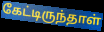
கேட்டிருந்தாள்